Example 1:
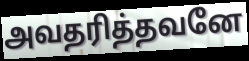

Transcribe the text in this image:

அவதரித்தவனே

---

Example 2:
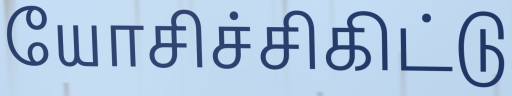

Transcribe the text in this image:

யோசிச்சிகிட்டு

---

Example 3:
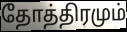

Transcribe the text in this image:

தோத்திரமும்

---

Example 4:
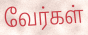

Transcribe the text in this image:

வேர்கள்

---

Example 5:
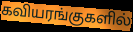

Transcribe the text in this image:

கவியரங்குகளில்